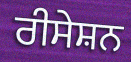
ਰੀਸੇਸ਼ਨ